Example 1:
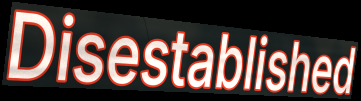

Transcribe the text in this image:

Disestablished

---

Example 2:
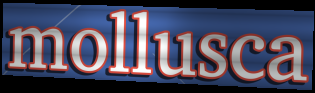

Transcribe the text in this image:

mollusca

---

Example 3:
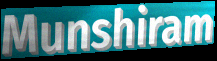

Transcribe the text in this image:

Munshiram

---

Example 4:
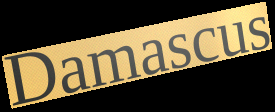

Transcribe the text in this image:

Damascus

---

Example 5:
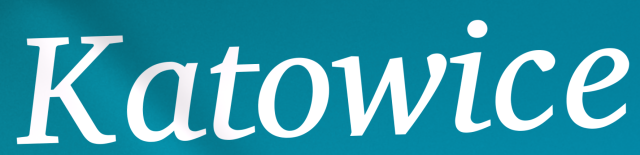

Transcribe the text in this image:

Katowice